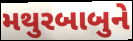
મથુરબાબુને